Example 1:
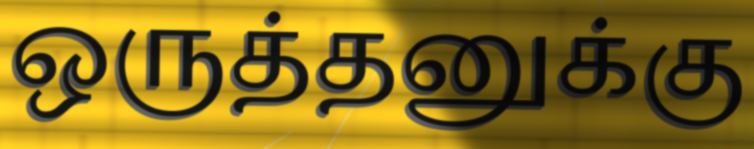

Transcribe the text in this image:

ஒருத்தனுக்கு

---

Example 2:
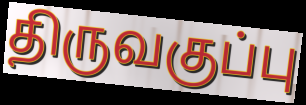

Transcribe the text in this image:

திருவகுப்பு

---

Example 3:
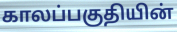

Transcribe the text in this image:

காலப்பகுதியின்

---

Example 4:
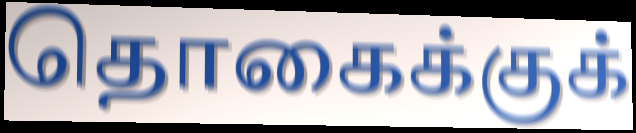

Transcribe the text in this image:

தொகைக்குக்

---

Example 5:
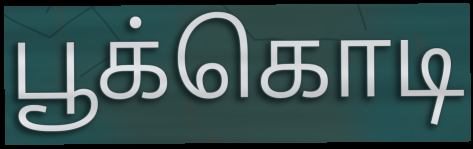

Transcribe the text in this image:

பூக்கொடி